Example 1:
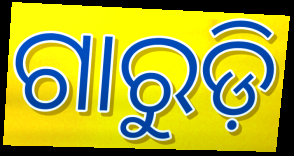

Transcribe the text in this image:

ଗାରୁଡ଼ି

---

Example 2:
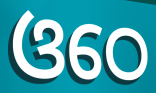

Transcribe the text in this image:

ଓଠେ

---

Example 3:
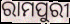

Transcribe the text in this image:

ରାମପୁରୀ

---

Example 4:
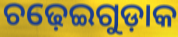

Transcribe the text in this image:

ଚଢ଼େଇଗୁଡ଼ାକ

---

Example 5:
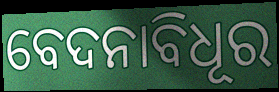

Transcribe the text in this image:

ବେଦନାବିଧୂର